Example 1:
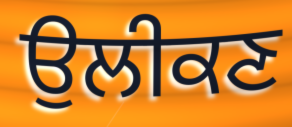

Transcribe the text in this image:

ਉਲੀਕਣ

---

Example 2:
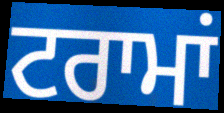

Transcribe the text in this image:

ਟਰਾਮਾਂ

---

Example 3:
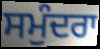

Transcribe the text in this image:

ਸਮੁੰਦਰਾ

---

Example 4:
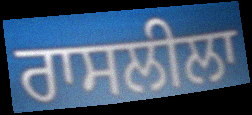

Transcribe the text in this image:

ਰਾਸਲੀਲਾ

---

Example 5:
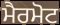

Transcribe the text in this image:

ਮੈਰਮੋਟ